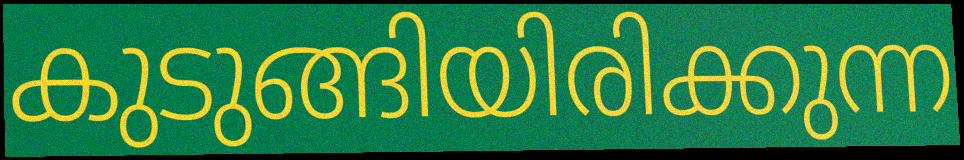
കുടുങ്ങിയിരിക്കുന്ന